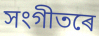
সংগীতৰে